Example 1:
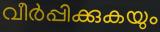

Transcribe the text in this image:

വീർപ്പിക്കുകയും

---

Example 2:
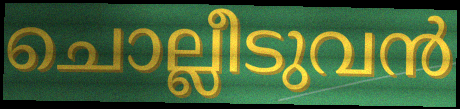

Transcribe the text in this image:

ചൊല്ലീടുവൻ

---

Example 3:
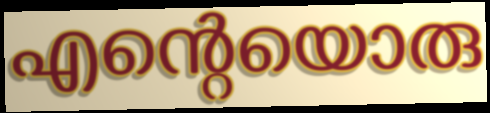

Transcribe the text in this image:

എന്റെയൊരു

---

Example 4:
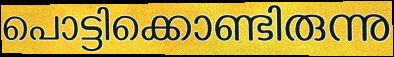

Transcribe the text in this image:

പൊട്ടിക്കൊണ്ടിരുന്നു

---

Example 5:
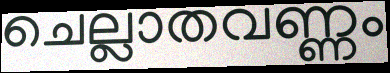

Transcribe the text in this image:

ചെല്ലാതവണ്ണം